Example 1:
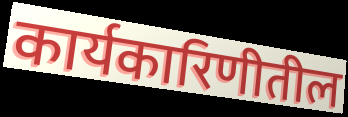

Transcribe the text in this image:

कार्यकारिणीतील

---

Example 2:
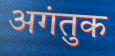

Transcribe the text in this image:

अगंतुक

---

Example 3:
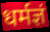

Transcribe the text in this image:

धर्मज्ञं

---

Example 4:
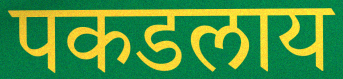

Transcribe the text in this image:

पकडलाय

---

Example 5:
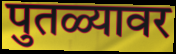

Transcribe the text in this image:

पुतळ्यावर